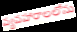
వ్యవహారాలలోను